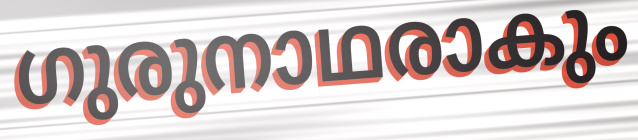
ഗുരുനാഥരാകും